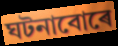
ঘটনাবোৰে